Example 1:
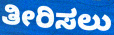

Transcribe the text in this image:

ತೀರಿಸಲು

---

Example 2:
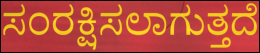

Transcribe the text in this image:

ಸಂರಕ್ಷಿಸಲಾಗುತ್ತದೆ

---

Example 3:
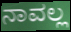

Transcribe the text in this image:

ನಾವಲ್ಲ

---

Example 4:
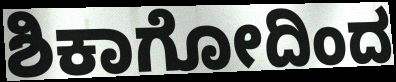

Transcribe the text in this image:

ಶಿಕಾಗೋದಿಂದ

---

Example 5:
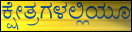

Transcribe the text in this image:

ಕ್ಷೇತ್ರಗಳಲ್ಲಿಯೂ